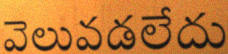
వెలువడలేదు